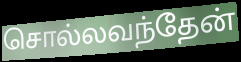
சொல்லவந்தேன்